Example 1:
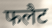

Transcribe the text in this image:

फलैट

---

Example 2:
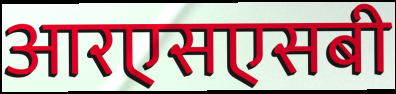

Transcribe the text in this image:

आरएसएसबी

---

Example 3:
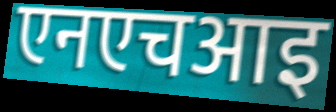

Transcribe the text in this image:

एनएचआइ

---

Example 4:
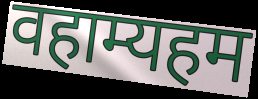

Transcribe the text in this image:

वहाम्यहम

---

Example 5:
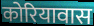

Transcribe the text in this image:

कोरियावास